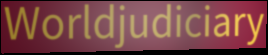
Worldjudiciary